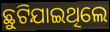
ଛୁଟିଯାଇଥିଲେ